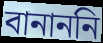
বানাননি